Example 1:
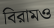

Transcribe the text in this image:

বিরামও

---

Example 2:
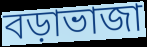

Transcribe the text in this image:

বড়াভাজা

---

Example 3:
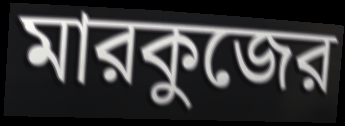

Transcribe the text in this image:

মারকুজের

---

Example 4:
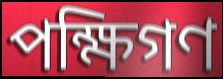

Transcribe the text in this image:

পক্ষিগণ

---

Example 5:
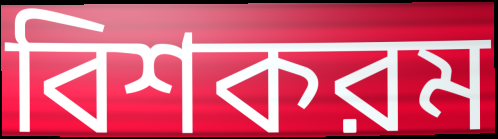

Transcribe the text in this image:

বিশকরম